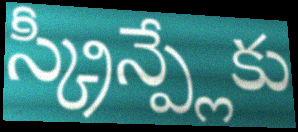
స్క్రీన్ప్లేకు